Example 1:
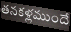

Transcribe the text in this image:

తనకళ్లముందే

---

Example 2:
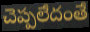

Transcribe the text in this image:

చెప్పలేదంతే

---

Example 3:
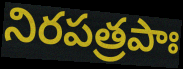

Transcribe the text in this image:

నిరపత్రపాః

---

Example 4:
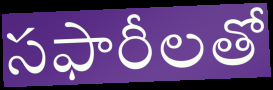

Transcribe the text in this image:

సఫారీలతో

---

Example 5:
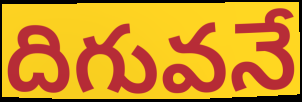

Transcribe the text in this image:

దిగువనే